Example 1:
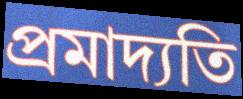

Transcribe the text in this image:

প্রমাদ্যতি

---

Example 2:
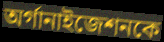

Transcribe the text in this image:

অর্গানাইজেশনকে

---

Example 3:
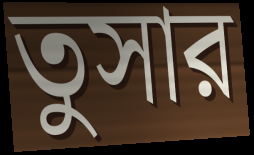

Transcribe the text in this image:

তুসার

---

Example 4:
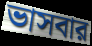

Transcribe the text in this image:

ভাসবার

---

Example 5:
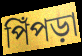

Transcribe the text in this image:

পিঁপড়া